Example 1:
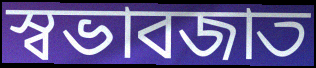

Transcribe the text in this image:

স্বভাবজাত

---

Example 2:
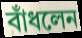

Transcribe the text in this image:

বাঁধলেন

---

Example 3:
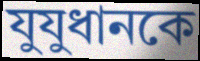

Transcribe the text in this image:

যুযুধানকে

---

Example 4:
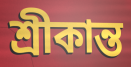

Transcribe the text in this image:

শ্রীকান্ত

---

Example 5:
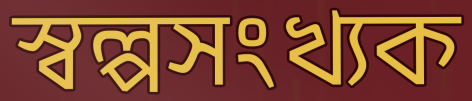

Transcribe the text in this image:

স্বল্পসংখ্যক